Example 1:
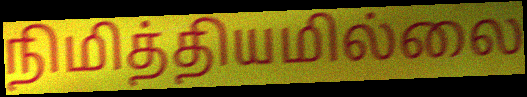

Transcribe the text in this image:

நிமித்தியமில்லை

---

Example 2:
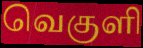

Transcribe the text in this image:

வெகுளி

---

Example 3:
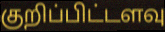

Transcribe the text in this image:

குறிப்பிட்டளவு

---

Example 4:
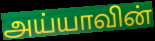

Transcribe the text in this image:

அய்யாவின்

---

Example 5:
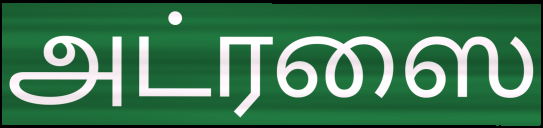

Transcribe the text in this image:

அட்ரஸை